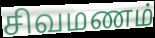
சிவமணம்